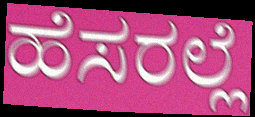
ಹೆಸರಲ್ಲೆ